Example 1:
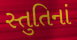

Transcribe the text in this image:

સ્તુતિનાં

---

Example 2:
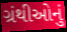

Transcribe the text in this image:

ગ્રંથીઓનું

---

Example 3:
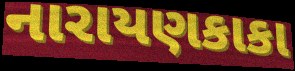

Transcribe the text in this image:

નારાયણકાકા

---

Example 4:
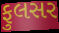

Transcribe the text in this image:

ફુલસર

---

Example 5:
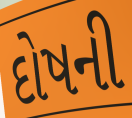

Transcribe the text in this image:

દોષની